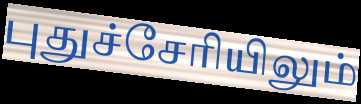
புதுச்சேரியிலும்